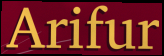
Arifur